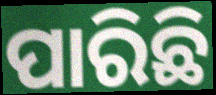
ପାରିଛି